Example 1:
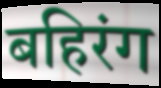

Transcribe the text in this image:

बहिरंग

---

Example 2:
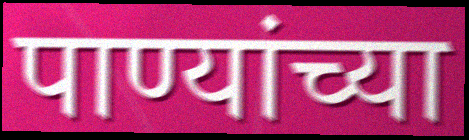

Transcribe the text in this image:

पाण्यांच्या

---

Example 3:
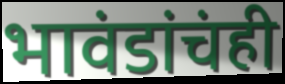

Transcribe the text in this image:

भावंडांचंही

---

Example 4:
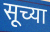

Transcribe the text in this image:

सूच्या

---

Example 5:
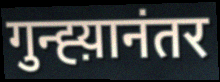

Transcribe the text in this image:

गुन्ह्य़ानंतर